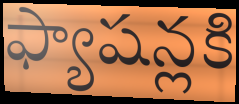
ఫ్యాషన్లకి